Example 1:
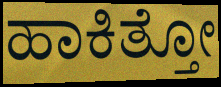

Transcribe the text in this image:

ಹಾಕಿತ್ತೋ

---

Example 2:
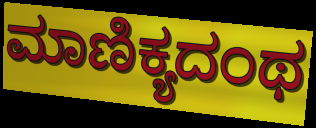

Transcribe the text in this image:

ಮಾಣಿಕ್ಯದಂಥ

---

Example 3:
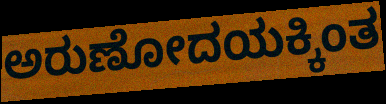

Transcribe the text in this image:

ಅರುಣೋದಯಕ್ಕಿಂತ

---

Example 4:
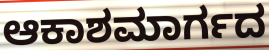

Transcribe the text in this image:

ಆಕಾಶಮಾರ್ಗದ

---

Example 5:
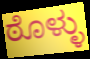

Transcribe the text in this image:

ಠೊಳ್ಳು